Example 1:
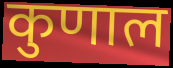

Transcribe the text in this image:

कुणाल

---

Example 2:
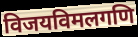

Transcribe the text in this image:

विजयविमलगणि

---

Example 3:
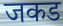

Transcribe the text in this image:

जकड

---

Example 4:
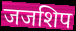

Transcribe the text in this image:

जजशिप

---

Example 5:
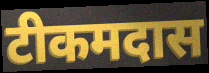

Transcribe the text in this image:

टीकमदास